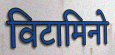
विटामिनो